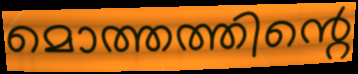
മൊത്തത്തിന്റെ